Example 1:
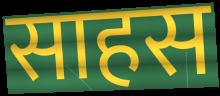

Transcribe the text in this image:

साहस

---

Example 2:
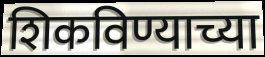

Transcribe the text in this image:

शिकविण्याच्या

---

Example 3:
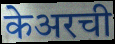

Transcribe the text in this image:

केअरची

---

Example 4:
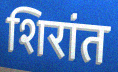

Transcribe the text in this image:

शिरांत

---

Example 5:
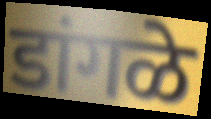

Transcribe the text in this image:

डांगळे